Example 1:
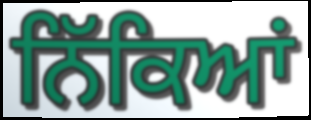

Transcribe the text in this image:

ਨਿੱਕਿਆਂ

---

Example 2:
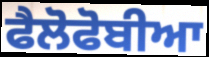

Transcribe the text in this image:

ਫੈਲੋਫੋਬੀਆ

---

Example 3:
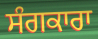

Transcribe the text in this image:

ਸੰਗਕਾਰਾ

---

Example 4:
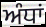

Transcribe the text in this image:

ਅੰਧਾਂ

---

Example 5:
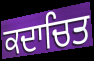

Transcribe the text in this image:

ਕਦਾਚਿਤ